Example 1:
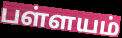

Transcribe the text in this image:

பள்ளயம்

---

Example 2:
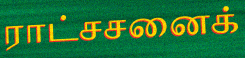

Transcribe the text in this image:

ராட்சசனைக்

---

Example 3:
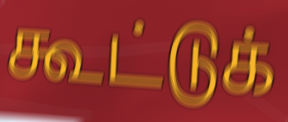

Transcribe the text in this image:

கூட்டுக்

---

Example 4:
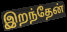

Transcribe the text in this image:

இறந்தேன்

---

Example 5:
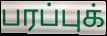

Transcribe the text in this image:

பரப்புக்